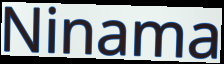
Ninama